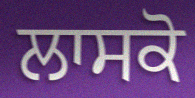
ਲਾਸਕੋ